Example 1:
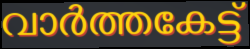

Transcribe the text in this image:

വാർത്തകേട്ട്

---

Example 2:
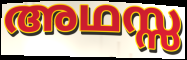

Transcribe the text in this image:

അഥസ്സ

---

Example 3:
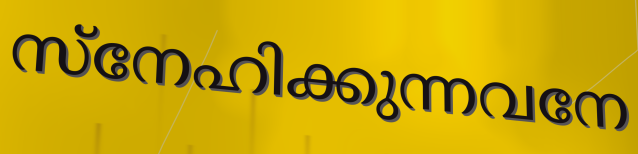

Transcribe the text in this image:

സ്നേഹിക്കുന്നവനേ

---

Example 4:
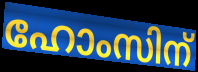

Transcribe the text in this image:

ഹോംസിന്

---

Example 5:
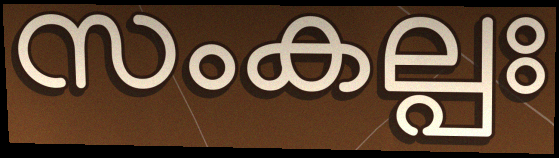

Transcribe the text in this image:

സംകല്പഃ